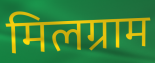
मिलग्राम